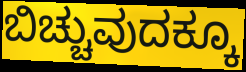
ಬಿಚ್ಚುವುದಕ್ಕೂ